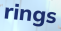
rings